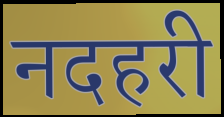
नदहरी